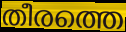
തീരത്തെ